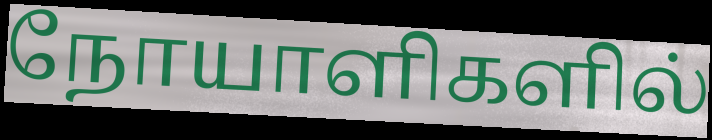
நோயாளிகளில்